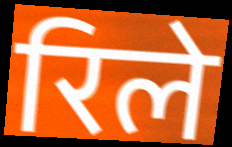
रिले